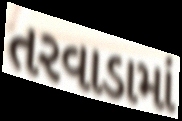
તરવાડામાં